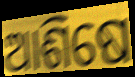
ଆଶିଷେ